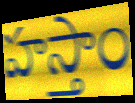
హస్తాం